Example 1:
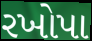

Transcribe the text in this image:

રખોપા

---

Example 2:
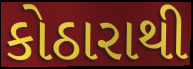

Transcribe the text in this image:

કોઠારાથી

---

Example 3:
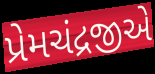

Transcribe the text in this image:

પ્રેમચંદ્રજીએ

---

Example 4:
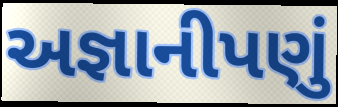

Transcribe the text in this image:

અજ્ઞાનીપણું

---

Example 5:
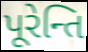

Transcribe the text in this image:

પૂરેન્તિ